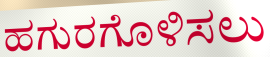
ಹಗುರಗೊಳಿಸಲು